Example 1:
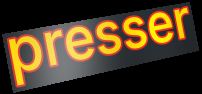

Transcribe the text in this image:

presser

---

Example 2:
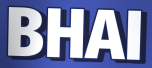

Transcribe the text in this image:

BHAI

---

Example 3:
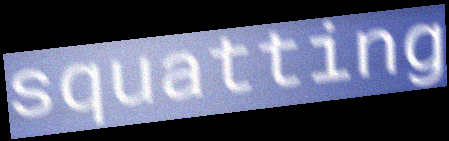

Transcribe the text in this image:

squatting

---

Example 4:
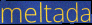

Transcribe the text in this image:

meltada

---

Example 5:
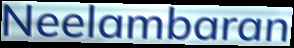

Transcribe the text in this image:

Neelambaran